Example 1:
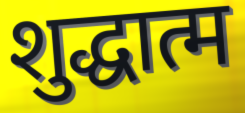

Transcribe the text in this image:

शुद्धात्म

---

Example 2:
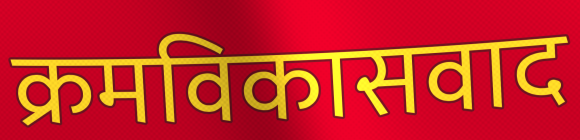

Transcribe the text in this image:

क्रमविकासवाद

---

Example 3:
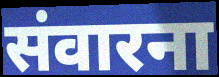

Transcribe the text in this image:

संवारना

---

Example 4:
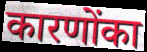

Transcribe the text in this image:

कारणोंका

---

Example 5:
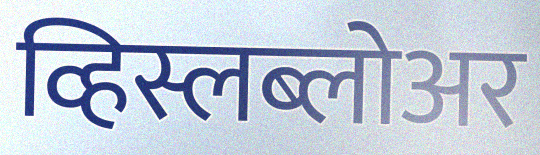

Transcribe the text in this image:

व्हिस्लब्लोअर